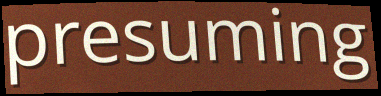
presuming